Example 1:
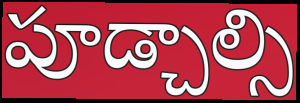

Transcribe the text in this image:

పూడ్చాల్సి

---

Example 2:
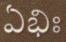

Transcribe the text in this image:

ఏభిః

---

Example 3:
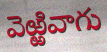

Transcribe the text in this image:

వెఱ్ఱివాగు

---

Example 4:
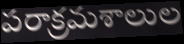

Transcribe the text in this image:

పరాక్రమశాలుల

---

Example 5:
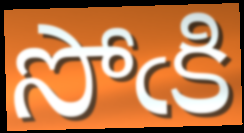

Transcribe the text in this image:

సోఁకి